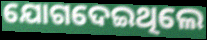
ଯୋଗଦେଇଥିଲେ